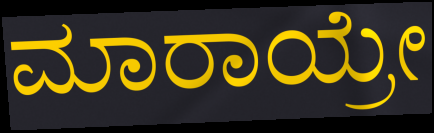
ಮಾರಾಯ್ರೇ